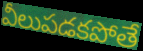
వీలుపడకపోతే